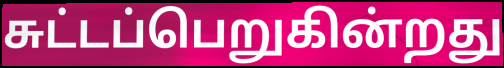
சுட்டப்பெறுகின்றது